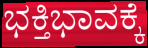
ಭಕ್ತಿಭಾವಕ್ಕೆ